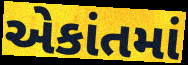
એકાંતમાં